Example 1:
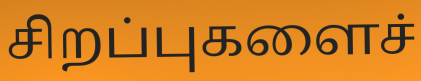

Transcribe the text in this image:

சிறப்புகளைச்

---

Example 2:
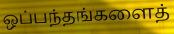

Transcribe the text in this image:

ஒப்பந்தங்களைத்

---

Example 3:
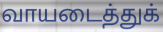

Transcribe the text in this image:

வாயடைத்துக்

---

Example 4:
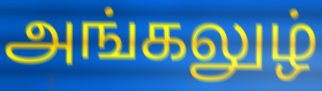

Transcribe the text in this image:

அங்கலுழ்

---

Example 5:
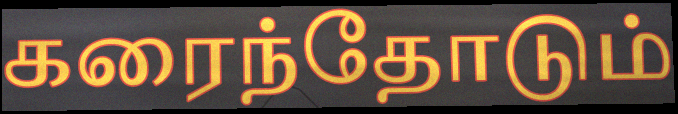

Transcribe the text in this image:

கரைந்தோடும்